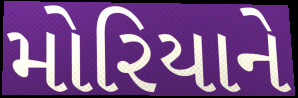
મોરિયાને